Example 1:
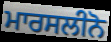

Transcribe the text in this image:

ਮਾਰਸਲੀਨੋ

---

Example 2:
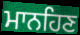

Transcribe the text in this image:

ਮਾਨਹਿਣ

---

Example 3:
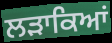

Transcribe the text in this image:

ਲੜਾਕਿਆਂ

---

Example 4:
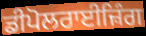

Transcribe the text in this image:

ਡੀਪੋਲਰਾਈਜ਼ਿੰਗ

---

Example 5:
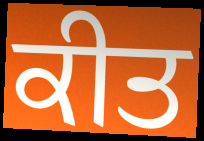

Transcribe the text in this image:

ਕੀਤ